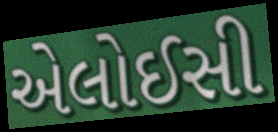
એલોઈસી